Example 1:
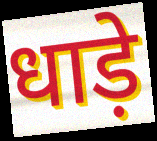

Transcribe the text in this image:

धाड़े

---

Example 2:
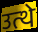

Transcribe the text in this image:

उत्थे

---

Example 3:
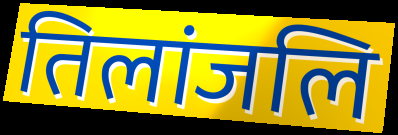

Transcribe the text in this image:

तिलांजलि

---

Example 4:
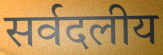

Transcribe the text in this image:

सर्वदलीय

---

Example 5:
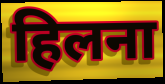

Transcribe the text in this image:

हिलना